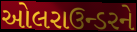
ઓલરાઉન્ડરને